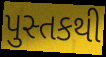
પુસ્તકથી